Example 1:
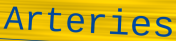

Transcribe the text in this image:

Arteries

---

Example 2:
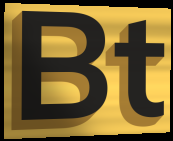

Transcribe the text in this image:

Bt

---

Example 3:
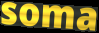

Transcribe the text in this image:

soma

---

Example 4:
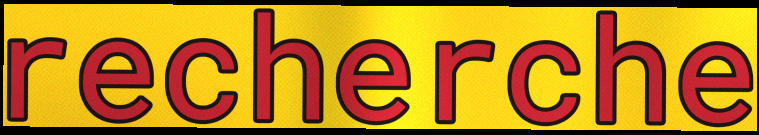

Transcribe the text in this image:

recherche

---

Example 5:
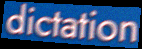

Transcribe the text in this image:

dictation